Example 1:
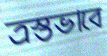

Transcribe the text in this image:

ত্রস্তভাবে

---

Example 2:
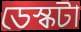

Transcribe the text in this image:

ডেস্কটা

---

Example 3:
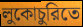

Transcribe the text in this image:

লুকোচুরিতে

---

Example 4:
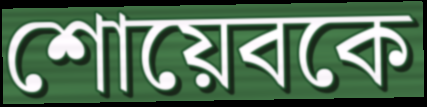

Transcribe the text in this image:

শোয়েবকে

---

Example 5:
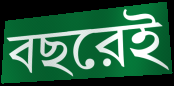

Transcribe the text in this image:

বছরেই